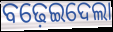
ବଢ଼େଇଦେଲା